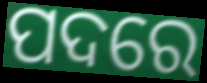
ପଦରେ